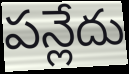
పన్లేదు